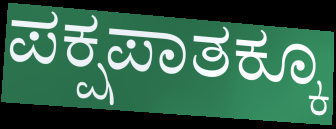
ಪಕ್ಷಪಾತಕ್ಕೂ